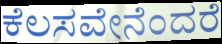
ಕೆಲಸವೇನೆಂದರೆ